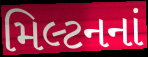
મિલ્ટનનાં